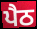
ਪੈਠ